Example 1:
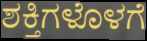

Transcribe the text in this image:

ಶಕ್ತಿಗಳೊಳಗೆ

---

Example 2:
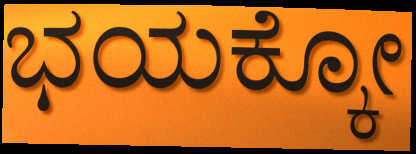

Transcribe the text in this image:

ಭಯಕ್ಕೋ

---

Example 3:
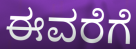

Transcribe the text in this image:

ಈವರೆಗೆ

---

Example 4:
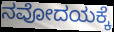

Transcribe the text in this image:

ನವೋದಯಕ್ಕೆ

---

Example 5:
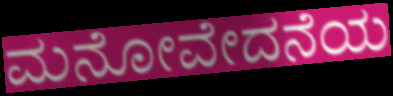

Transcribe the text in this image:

ಮನೋವೇದನೆಯ